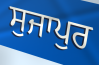
ਸੁਜਾਪੁਰ